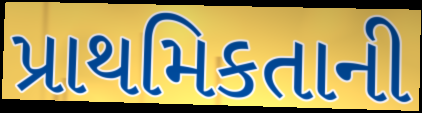
પ્રાથમિકતાની